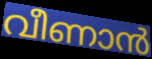
വീണാൻ